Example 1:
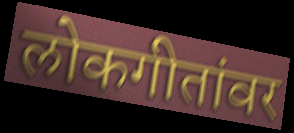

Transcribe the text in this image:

लोकगीतांवर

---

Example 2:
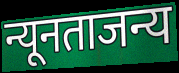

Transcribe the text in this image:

न्यूनताजन्य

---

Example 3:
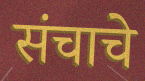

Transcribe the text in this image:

संचाचे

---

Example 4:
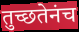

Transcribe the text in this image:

तुच्छतेनंच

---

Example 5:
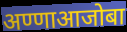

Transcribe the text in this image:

अण्णाआजोबा